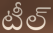
టీల్